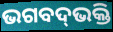
ଭଗବଦ୍‌ଭକ୍ତି